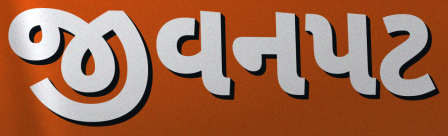
જીવનપટ